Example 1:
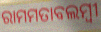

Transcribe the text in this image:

ରାମମତାବଲମ୍ବୀ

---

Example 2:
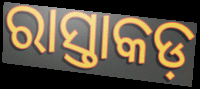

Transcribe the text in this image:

ରାସ୍ତାକଡ଼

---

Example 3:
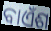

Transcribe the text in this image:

ବାଏଁଶ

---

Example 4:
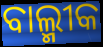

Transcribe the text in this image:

ବାଲ୍ମୀକ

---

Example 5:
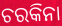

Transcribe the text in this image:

ଚରକିନା